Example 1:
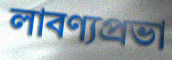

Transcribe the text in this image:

লাবণ্যপ্রভা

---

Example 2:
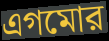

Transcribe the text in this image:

এগমোর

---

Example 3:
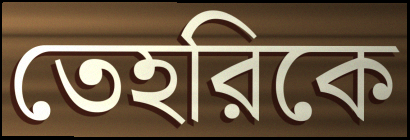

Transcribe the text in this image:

তেহরিকে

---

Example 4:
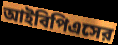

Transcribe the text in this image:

আইবিপিএসের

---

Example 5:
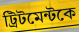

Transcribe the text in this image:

ট্রিটমেন্টকে